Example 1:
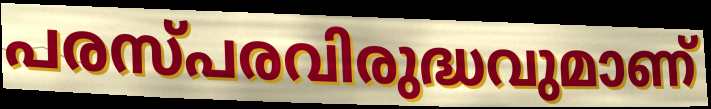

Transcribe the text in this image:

പരസ്പരവിരുദ്ധവുമാണ്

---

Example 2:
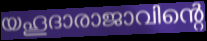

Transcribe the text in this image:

യഹൂദാരാജാവിന്റെ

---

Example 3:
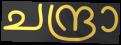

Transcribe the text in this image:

ചന്ദ്രാ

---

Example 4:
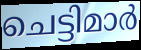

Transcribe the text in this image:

ചെട്ടിമാർ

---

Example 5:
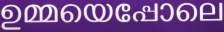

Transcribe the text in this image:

ഉമ്മയെപ്പോലെ